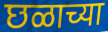
छळाच्या